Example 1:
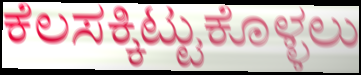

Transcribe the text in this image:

ಕೆಲಸಕ್ಕಿಟ್ಟುಕೊಳ್ಳಲು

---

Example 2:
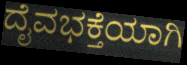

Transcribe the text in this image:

ದೈವಭಕ್ತೆಯಾಗಿ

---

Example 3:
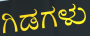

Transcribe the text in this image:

ಗಿಡಗಳು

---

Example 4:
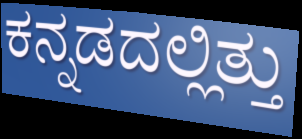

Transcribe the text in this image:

ಕನ್ನಡದಲ್ಲಿತ್ತು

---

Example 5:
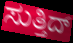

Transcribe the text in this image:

ಸುತ್ತಿದ್